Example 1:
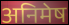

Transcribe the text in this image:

अनिमेष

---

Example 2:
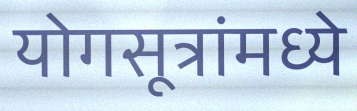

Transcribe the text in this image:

योगसूत्रांमध्ये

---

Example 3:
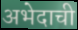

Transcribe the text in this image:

अभेदाची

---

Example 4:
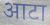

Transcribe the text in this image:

आटा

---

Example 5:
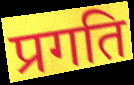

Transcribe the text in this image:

प्रगति